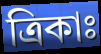
ত্রিকাঃ